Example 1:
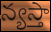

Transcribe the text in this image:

న్యస్తా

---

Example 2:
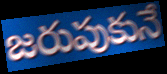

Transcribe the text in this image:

జరుపుకునే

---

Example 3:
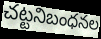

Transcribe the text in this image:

చట్టనిబంధనల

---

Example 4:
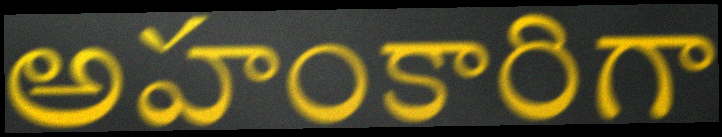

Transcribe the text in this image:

అహంకారిగా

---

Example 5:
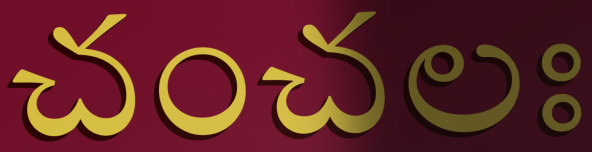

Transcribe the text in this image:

చంచలః